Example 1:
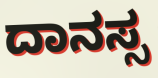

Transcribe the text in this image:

ದಾನಸ್ಸ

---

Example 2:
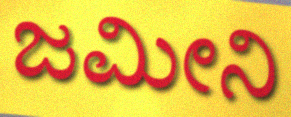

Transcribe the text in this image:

ಜಮೀನಿ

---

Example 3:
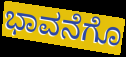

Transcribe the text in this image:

ಭಾವನೆಗೊ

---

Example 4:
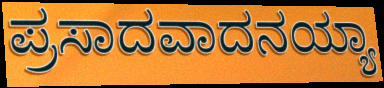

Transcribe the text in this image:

ಪ್ರಸಾದವಾದನಯ್ಯಾ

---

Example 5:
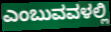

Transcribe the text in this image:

ಎಂಬುವವಳಲ್ಲಿ